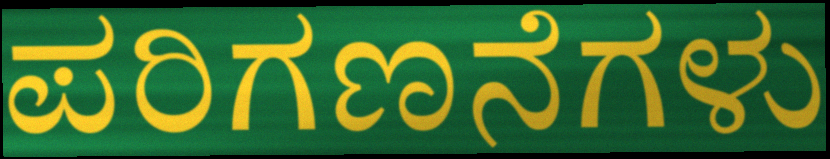
ಪರಿಗಣನೆಗಳು